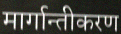
मार्गान्तीकरण